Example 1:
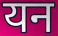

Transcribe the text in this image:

यन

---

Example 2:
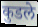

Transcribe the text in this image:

कुडले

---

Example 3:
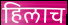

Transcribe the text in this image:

हिलाच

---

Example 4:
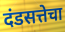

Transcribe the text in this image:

दंडसत्तेचा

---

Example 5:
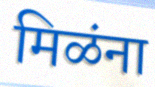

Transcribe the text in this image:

मिळंना